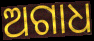
ଅଗାଧ